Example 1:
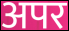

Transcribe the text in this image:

अपर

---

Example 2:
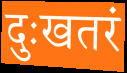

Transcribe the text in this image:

दुःखतरं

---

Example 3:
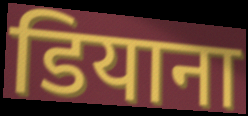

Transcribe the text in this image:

डियाना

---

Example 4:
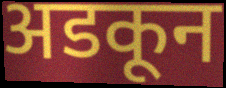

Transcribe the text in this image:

अडकून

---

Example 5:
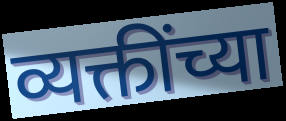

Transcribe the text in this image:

व्यक्तींच्या